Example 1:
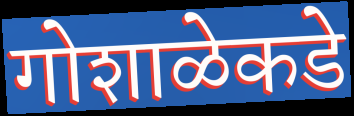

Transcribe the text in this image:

गोशाळेकडे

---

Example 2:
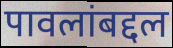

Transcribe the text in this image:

पावलांबद्दल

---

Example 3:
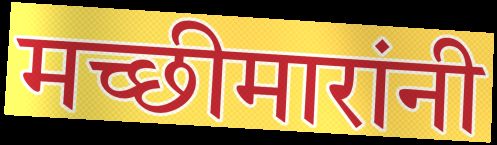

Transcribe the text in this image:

मच्छीमारांनी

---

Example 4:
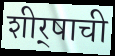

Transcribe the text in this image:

शीर्षाची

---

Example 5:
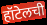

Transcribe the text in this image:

हॉटेलची